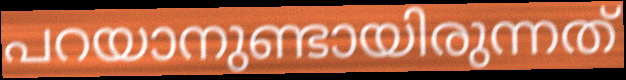
പറയാനുണ്ടായിരുന്നത്